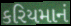
કરિયમાનં